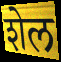
शेल